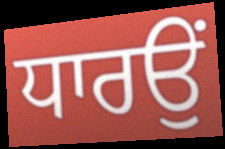
ਧਾਰਉਂ